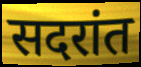
सदरांत